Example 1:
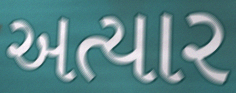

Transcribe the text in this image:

અત્યાર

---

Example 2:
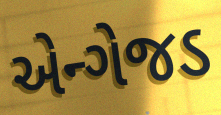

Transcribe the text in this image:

એન્ગેજડ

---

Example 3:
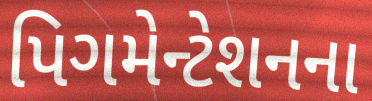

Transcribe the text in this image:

પિગમેન્ટેશનના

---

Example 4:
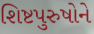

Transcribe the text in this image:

શિષ્ટપુરુષોને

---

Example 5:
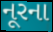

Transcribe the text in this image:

નૂરના